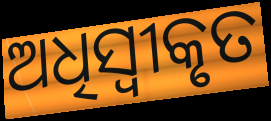
ଅଧିସ୍ୱୀକୃତ